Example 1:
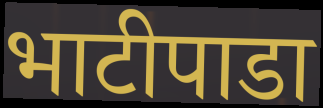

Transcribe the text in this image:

भाटीपाडा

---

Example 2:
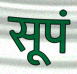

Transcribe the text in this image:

सूपं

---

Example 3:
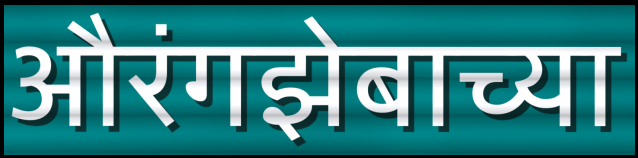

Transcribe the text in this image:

औरंगझेबाच्या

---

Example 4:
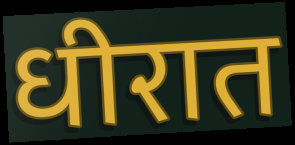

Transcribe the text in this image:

धीरात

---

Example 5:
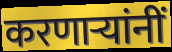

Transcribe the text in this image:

करणार्‍यांनीं